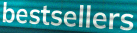
bestsellers